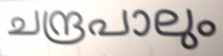
ചന്ദ്രപാലും